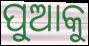
ପୁଆକୁ